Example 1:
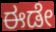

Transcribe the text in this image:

ಈಡೇ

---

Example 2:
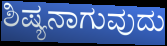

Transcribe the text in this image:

ಶಿಷ್ಯನಾಗುವುದು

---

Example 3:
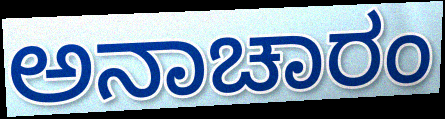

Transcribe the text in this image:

ಅನಾಚಾರಂ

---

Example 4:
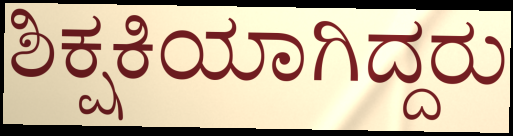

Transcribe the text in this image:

ಶಿಕ್ಷಕಿಯಾಗಿದ್ದರು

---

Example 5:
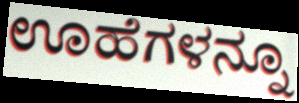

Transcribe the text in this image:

ಊಹೆಗಳನ್ನೂ